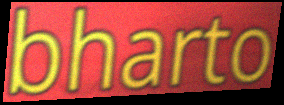
bharto